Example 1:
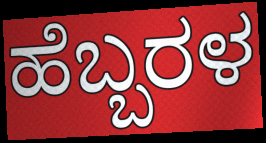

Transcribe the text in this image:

ಹೆಬ್ಬರಳ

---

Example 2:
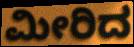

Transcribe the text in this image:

ಮೀರಿದ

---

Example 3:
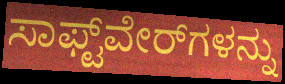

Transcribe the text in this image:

ಸಾಫ್ಟ್‌ವೇರ್‌ಗಳನ್ನು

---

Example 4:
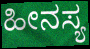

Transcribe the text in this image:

ಹೀನಸ್ಯ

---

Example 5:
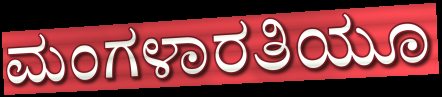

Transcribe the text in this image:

ಮಂಗಳಾರತಿಯೂ